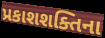
પ્રકાશશક્તિના